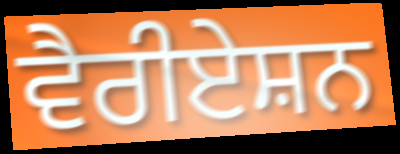
ਵੈਰੀਏਸ਼ਨ